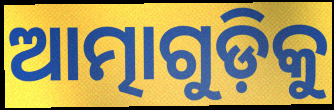
ଆତ୍ମାଗୁଡ଼ିକୁ